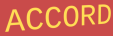
ACCORD